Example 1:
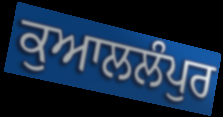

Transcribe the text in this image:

ਕੁਆਲਲੰਪੁਰ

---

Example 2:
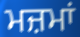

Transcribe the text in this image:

ਮਜ਼ਮਾਂ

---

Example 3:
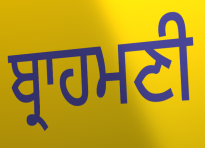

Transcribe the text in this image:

ਬ੍ਰਾਹਮਣੀ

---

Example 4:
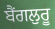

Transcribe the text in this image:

ਬੈਂਗਲੁਰੂ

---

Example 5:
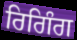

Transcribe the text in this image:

ਰਿਗਿੰਗ